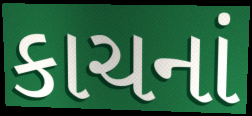
કાચનાં